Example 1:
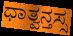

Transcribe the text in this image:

ಧಾತ್ವನ್ತಸ್ಸ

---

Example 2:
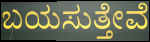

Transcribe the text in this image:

ಬಯಸುತ್ತೇವೆ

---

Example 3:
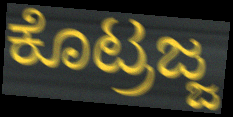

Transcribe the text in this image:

ಕೊಟ್ರಜ್ಜ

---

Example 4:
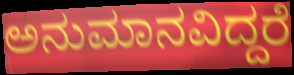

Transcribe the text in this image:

ಅನುಮಾನವಿದ್ದರೆ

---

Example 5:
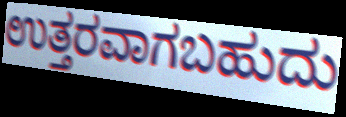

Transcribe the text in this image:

ಉತ್ತರವಾಗಬಹುದು